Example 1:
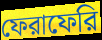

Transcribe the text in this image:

ফেরাফেরি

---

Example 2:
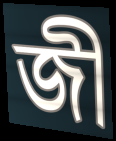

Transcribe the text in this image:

জী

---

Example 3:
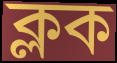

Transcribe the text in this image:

ক্লক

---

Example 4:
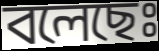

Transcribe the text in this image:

বলেছেঃ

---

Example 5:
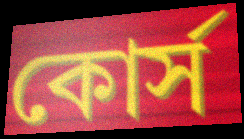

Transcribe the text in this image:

কোর্স